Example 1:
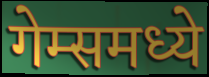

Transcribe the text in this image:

गेम्समध्ये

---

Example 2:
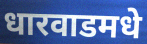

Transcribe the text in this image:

धारवाडमधे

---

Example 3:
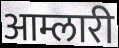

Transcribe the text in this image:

आम्लारी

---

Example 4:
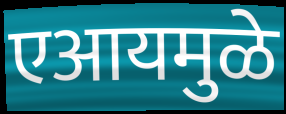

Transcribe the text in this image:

एआयमुळे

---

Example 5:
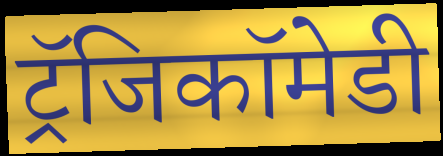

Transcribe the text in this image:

ट्रॅजिकॉमेडी